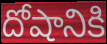
దోషానికి